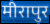
मीरापुर